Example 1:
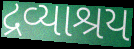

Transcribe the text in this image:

દ્રવ્યાશ્રય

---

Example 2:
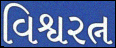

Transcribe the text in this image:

વિશ્વરત્ન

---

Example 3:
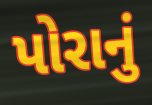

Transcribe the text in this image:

પોરાનું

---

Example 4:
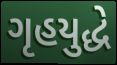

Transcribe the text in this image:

ગૃહયુદ્ધે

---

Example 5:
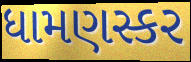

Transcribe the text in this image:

ધામણસ્કર